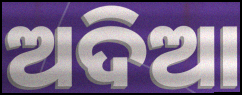
ଅଦିଆ